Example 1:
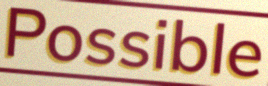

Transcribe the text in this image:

Possible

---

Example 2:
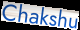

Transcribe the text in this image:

Chakshu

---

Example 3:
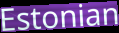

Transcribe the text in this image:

Estonian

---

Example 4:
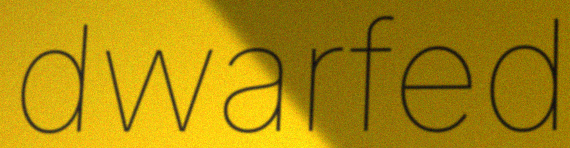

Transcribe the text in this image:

dwarfed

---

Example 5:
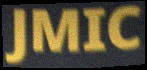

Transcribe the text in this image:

JMIC